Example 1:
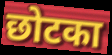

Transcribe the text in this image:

छोटका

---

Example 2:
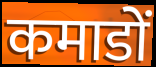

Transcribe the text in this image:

कमाडों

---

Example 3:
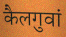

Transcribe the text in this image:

कैलगुवां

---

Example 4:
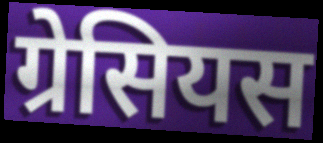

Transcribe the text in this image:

ग्रेसियस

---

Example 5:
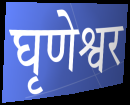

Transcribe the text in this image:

घृणेश्वर